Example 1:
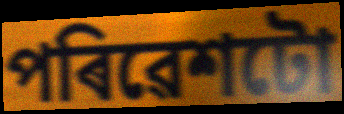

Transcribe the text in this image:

পৰিৱেশটো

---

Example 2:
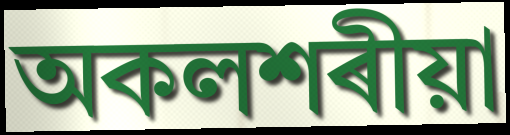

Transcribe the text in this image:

অকলশৰীয়া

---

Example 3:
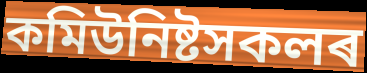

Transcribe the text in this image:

কমিউনিষ্টসকলৰ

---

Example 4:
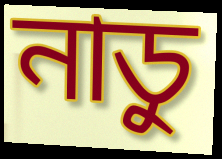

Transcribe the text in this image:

নাডু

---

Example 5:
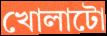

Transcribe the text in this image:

খোলাটো